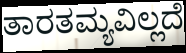
ತಾರತಮ್ಯವಿಲ್ಲದೆ